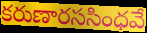
కరుణారససింధవే